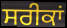
ਸਰੀਕਾਂ